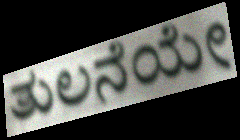
ತುಲನೆಯೇ